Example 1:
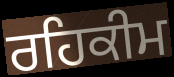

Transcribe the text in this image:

ਰਹਿਕੀਮ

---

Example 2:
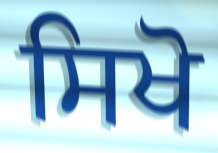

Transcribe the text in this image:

ਸਿਖੋ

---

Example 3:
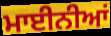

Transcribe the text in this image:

ਮਾਈਨੀਆਂ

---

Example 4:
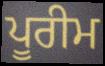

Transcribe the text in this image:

ਪੂਰੀਮ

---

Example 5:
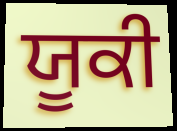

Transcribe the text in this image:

ਯੂਕੀ